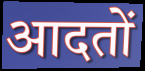
आदतों